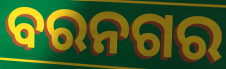
ବରନଗର